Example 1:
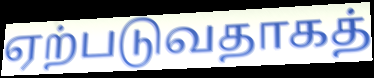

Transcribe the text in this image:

ஏற்படுவதாகத்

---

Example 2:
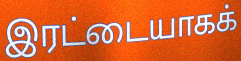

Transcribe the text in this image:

இரட்டையாகக்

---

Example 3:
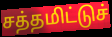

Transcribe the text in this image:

சத்தமிட்டுச்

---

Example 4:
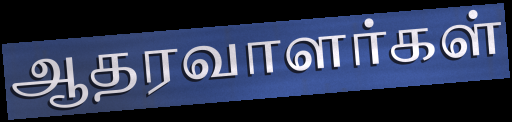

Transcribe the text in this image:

ஆதரவாளர்கள்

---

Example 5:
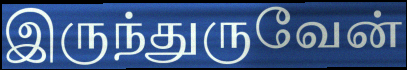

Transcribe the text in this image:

இருந்துருவேன்